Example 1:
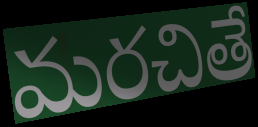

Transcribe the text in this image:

మరచితే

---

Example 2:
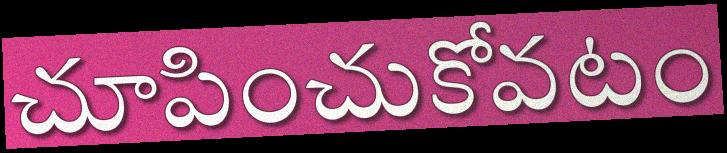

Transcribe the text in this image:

చూపించుకోవటం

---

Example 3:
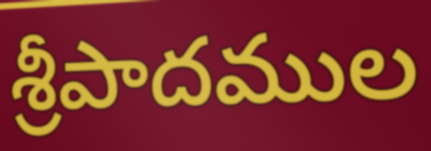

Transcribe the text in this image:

శ్రీపాదముల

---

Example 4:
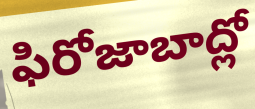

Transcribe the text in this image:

ఫిరోజాబాద్లో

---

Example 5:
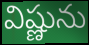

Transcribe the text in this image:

విష్ణును